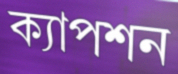
ক্যাপশন